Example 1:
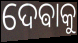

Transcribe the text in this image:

ଦେଵାକୁ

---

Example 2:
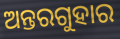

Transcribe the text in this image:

ଅନ୍ତରଗୁହାର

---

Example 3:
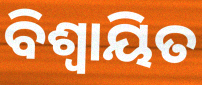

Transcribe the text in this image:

ବିଶ୍ବାୟିତ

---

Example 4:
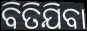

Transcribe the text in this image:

ବିତିଯିବା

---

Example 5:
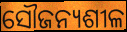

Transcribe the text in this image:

ସୌଜନ୍ୟଶୀଳ